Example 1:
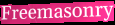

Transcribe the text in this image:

Freemasonry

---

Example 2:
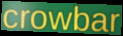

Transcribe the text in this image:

crowbar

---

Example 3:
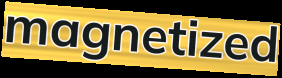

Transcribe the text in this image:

magnetized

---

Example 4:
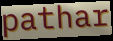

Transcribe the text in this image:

pathar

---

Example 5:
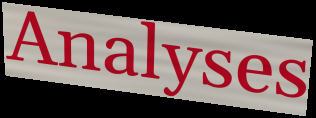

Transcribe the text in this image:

Analyses